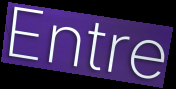
Entre